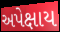
અપેક્ષાય